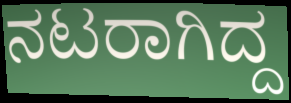
ನಟರಾಗಿದ್ದ